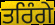
ਤਰਿੰਗੇ